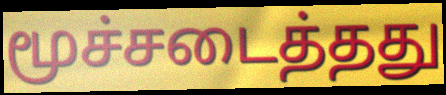
மூச்சடைத்தது